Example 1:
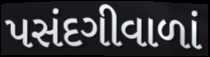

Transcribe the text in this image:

પસંદગીવાળાં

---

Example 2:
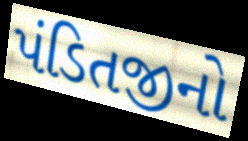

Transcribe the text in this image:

પંડિતજીનો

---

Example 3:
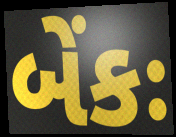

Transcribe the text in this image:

બેંકઃ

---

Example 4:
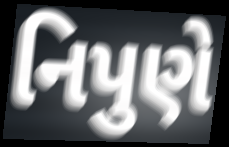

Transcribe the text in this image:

નિપુણે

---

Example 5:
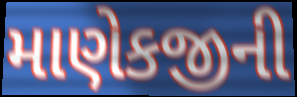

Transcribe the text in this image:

માણેકજીની